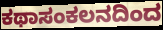
ಕಥಾಸಂಕಲನದಿಂದ